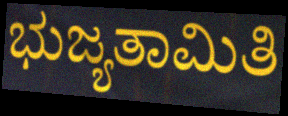
ಭುಜ್ಯತಾಮಿತಿ